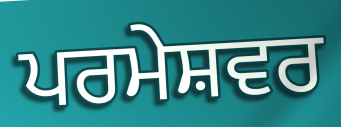
ਪਰਮੇਸ਼ਵਰ